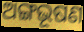
ଅଙ୍ଗଭୂଷଣ